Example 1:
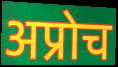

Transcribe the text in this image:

अप्रोच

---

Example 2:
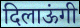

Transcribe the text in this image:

दिलाऊंगी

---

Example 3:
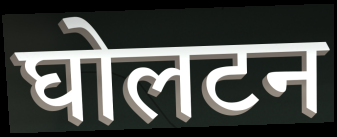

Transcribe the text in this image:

घोलटन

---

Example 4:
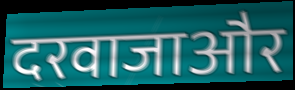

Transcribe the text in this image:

दरवाजाऔर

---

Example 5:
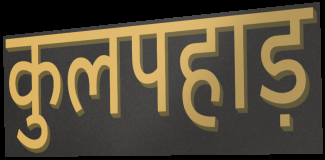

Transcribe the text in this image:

कुलपहाड़